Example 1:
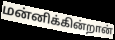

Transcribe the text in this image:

மன்னிக்கின்றான்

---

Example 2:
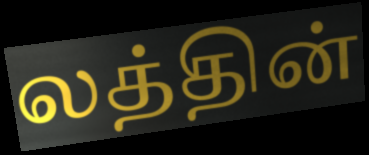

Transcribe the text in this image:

லத்தின்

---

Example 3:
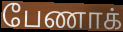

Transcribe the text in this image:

பேணாக்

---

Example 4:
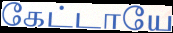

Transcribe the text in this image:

கேட்டாயே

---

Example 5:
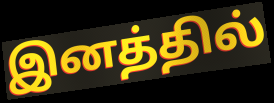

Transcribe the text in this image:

இனத்தில்